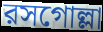
রসগোল্লা